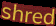
shred